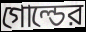
গোল্ডের